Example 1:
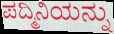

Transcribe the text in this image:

ಪದ್ಮಿನಿಯನ್ನು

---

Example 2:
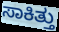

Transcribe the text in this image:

ಸಾಕಿತ್ತು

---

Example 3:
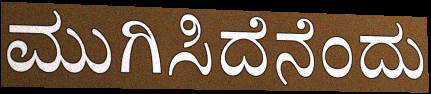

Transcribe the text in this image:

ಮುಗಿಸಿದೆನೆಂದು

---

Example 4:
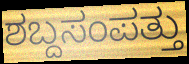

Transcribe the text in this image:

ಶಬ್ದಸಂಪತ್ತು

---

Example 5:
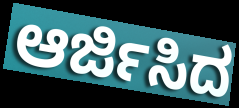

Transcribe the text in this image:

ಆರ್ಜಿಸಿದ